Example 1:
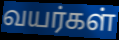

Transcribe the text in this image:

வயர்கள்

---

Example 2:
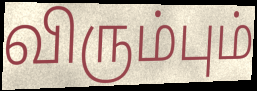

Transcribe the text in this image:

விரும்பும்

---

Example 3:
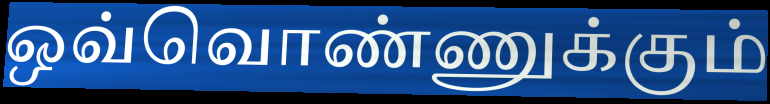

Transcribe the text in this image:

ஒவ்வொண்ணுக்கும்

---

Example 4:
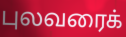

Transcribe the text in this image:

புலவரைக்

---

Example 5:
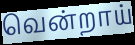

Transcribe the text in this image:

வென்றாய்